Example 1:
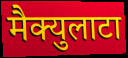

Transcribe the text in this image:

मैक्युलाटा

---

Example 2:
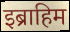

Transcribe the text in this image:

इब्राहिम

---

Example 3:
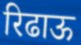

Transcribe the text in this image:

रिढाऊ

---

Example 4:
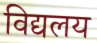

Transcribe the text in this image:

विद्यलय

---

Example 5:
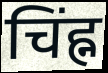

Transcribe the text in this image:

चिंह्न